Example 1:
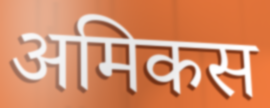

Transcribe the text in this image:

अमिकस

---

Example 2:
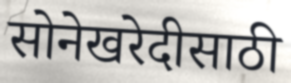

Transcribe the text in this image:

सोनेखरेदीसाठी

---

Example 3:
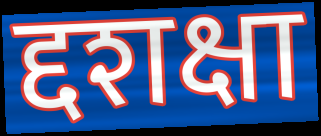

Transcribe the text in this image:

द्दशक्षा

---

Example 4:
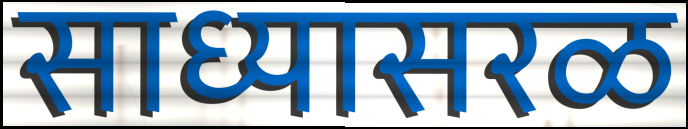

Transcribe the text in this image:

साध्यासरळ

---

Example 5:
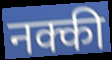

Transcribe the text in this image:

नक्की